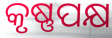
କୃଷ୍ଣପକ୍ଷ